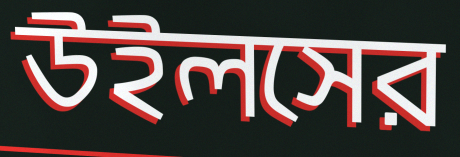
উইলসের